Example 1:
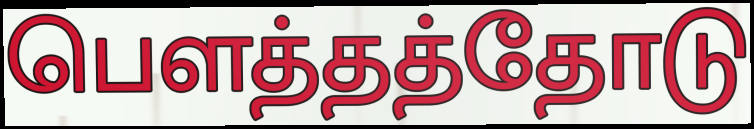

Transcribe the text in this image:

பௌத்தத்தோடு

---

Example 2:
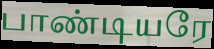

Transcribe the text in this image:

பாண்டியரே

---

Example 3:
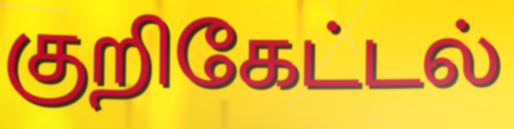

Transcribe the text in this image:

குறிகேட்டல்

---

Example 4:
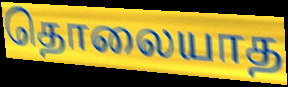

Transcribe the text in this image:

தொலையாத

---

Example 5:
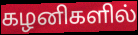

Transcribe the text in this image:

கழனிகளில்